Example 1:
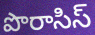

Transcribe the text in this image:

పొరాసిస్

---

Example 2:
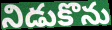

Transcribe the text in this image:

నిడుకొను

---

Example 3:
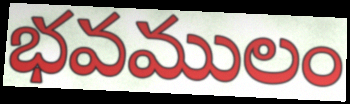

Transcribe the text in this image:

భవములం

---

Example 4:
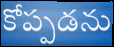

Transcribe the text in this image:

కోప్పడను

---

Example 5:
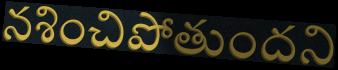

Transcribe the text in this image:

నశించిపోతుందని